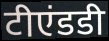
टीएंडडी